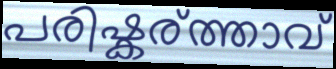
പരിഷ്കര്ത്താവ്